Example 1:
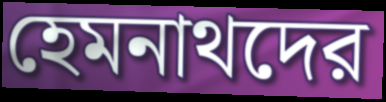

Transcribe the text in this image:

হেমনাথদের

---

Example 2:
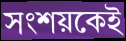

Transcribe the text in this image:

সংশয়কেই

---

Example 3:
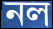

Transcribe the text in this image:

নল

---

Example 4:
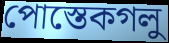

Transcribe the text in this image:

পোস্তেকগলু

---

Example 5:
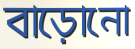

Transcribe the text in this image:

বাড়োনো